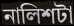
নালিশটা